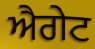
ਐਗੇਟ